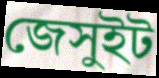
জেসুইট